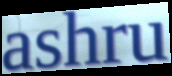
ashru